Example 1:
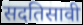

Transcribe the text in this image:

सदतिसावी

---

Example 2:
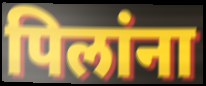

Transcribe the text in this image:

पिलांना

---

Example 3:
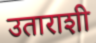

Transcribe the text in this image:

उताराशी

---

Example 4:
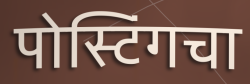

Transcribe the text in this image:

पोस्टिंगचा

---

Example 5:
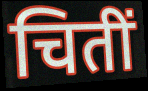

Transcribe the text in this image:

चितीं